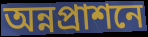
অন্নপ্রাশনে